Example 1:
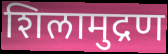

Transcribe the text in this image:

शिलामुद्रण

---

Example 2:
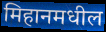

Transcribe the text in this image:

मिहानमधील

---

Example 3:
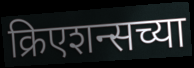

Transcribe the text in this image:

क्रिएशन्सच्या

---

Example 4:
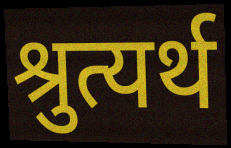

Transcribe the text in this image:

श्रुत्यर्थ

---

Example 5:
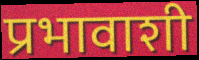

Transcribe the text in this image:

प्रभावाशी